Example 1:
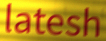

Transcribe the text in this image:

latesh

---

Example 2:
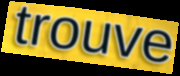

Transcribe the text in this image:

trouve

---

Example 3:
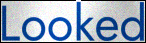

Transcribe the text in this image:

Looked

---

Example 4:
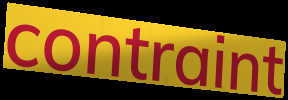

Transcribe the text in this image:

contraint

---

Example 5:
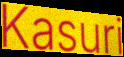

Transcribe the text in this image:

Kasuri